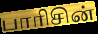
பாரிசின்